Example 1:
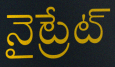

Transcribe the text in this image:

నైట్రేట్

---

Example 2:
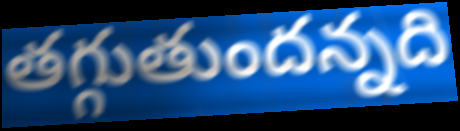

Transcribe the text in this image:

తగ్గుతుందన్నది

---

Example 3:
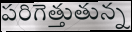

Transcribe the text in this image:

పరిగెత్తుతున్న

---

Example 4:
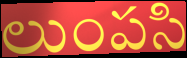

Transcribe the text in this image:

లుంపసి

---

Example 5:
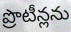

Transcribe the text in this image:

ప్రొటీన్లను